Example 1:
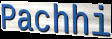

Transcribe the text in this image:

Pachhi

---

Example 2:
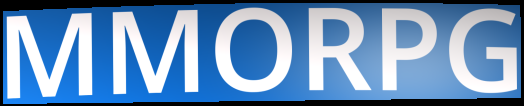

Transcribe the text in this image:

MMORPG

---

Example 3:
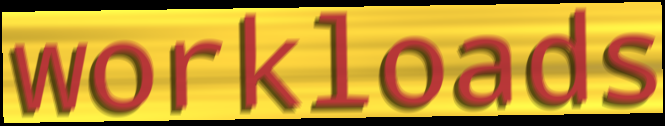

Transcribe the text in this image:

workloads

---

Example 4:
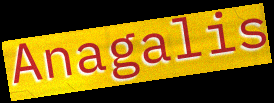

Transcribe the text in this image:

Anagalis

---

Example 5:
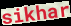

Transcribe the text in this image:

sikhar